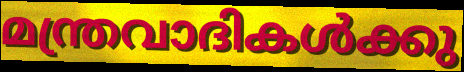
മന്ത്രവാദികൾക്കു